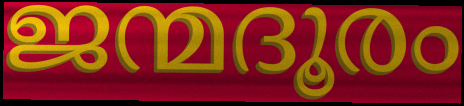
ജന്മദൂരം